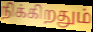
நிக்கிறதும்